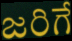
జరిగే